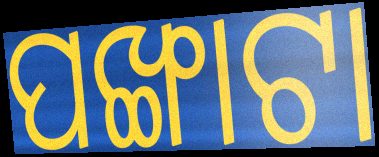
ପଙ୍ଖାଟା